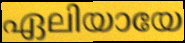
ഏലിയായേ